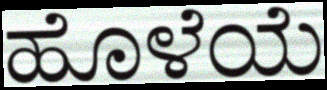
ಹೊಳೆಯೆ